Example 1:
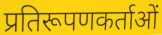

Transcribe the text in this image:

प्रतिरूपणकर्ताओं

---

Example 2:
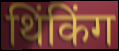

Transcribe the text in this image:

थिंकिंग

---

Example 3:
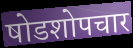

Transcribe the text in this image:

षोडशोपचार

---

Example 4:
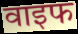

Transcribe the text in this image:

वाइफ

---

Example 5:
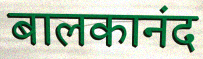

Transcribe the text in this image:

बालकानंद